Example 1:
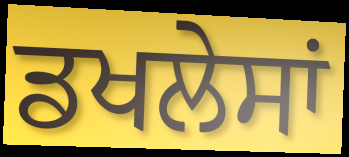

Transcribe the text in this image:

ਡਖਲੇਸਾਂ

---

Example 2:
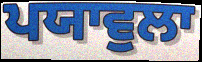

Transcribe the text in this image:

ਪਯਾਵੁਲਾ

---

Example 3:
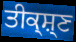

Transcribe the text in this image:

ਤੀਕ੍ਸ਼੍ਣ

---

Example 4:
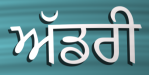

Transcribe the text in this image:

ਅੱਡਰੀ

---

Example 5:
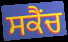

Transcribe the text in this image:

ਸਕੈਂਚ